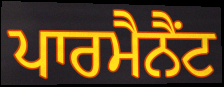
ਪਾਰਮੈਨੈਂਟ